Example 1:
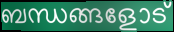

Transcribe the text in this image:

ബന്ധങ്ങളോട്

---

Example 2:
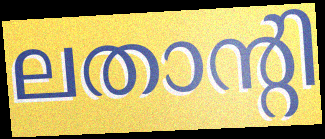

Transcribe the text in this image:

ലതാന്റി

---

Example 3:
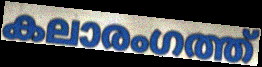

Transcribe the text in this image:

കലാരംഗത്ത്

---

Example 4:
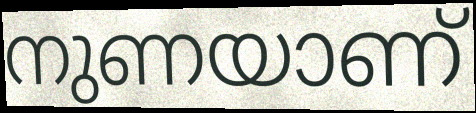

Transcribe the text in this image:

നുണയാണ്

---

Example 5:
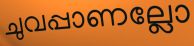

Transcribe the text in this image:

ചുവപ്പാണല്ലോ